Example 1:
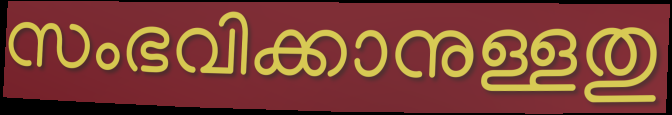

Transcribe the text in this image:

സംഭവിക്കാനുള്ളതു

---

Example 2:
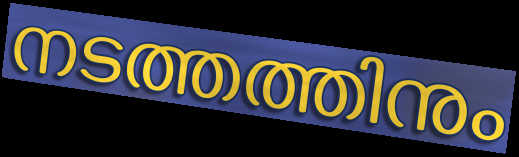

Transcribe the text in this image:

നടത്തത്തിനും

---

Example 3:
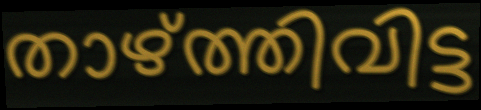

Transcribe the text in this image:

താഴ്ത്തിവിട്ട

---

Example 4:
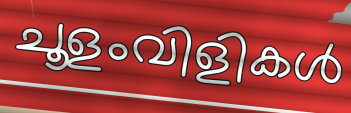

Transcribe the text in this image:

ചൂളംവിളികൾ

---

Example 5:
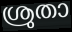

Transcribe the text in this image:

ശ്രുതാ